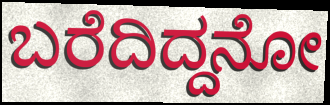
ಬರೆದಿದ್ದನೋ